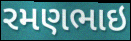
રમણભાઇ